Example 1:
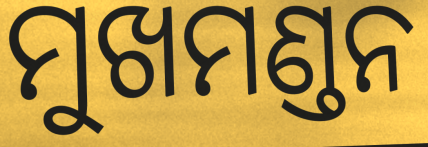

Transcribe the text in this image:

ମୁଖମଣ୍ଡନ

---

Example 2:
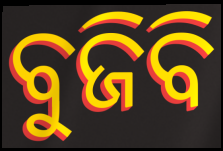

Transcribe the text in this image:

ବୁଜିବି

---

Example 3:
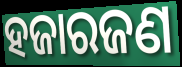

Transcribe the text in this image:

ହଜାରଜଣ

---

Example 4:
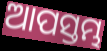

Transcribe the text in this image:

ଆପସ୍ତମ୍ଭ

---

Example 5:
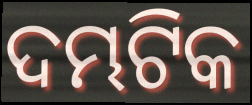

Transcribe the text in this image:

ଦମ୍ଭଟିକ